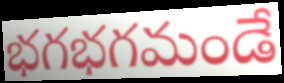
భగభగమండే